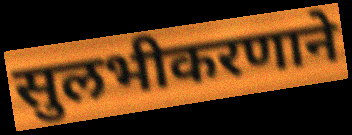
सुलभीकरणाने